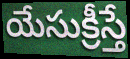
యేసుక్రీస్తే